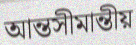
আন্তসীমান্তীয়